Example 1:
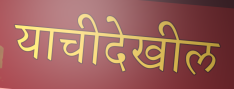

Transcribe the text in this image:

याचीदेखील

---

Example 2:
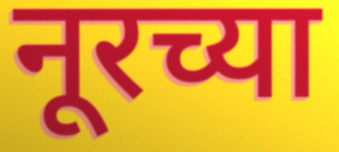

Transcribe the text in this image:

नूरच्या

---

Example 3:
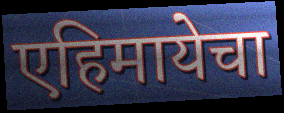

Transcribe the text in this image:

एहिमायेचा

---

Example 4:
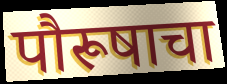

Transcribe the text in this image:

पौरूषाचा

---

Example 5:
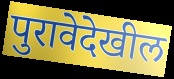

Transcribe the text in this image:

पुरावेदेखील